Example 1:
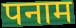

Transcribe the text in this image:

पनाम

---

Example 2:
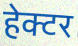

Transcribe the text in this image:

हेक्टर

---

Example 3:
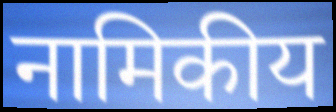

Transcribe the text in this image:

नामिकीय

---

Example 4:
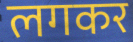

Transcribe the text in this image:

लगकर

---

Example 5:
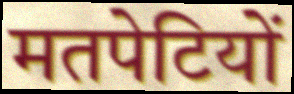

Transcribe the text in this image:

मतपेटियों